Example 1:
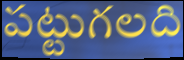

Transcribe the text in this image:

పట్టుగలది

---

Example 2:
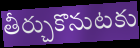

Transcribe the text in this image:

తీర్చుకొనుటకు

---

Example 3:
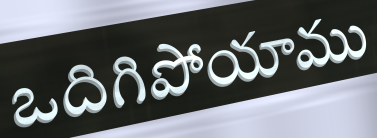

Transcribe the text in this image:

ఒదిగిపోయాము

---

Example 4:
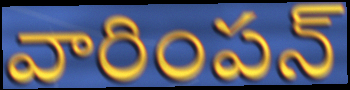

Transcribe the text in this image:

వారింపన్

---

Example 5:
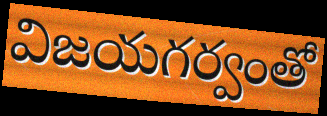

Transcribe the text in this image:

విజయగర్వంతో